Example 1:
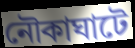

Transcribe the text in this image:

নৌকাঘাটে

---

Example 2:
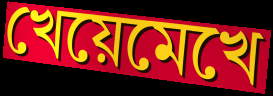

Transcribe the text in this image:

খেয়েমেখে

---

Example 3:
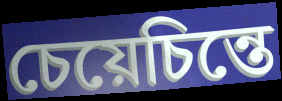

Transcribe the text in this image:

চেয়েচিন্তে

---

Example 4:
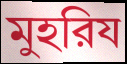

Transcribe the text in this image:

মুহরিয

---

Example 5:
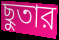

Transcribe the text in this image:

ছুতার